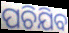
ପଚିଯିବ